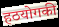
हठयोगकी